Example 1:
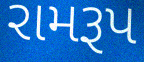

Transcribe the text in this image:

રામરૂપ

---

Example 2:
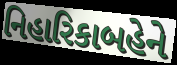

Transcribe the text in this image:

નિહારિકાબહેને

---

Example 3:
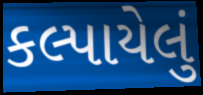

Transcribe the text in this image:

કલ્પાયેલું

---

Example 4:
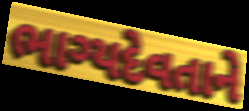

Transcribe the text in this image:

ભાગ્યદેવતાને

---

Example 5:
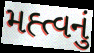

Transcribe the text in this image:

મહ્ત્વનું